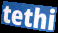
tethi